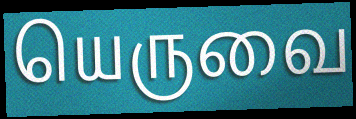
யெருவை